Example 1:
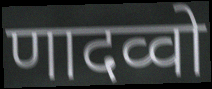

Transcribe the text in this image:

णादव्वो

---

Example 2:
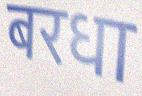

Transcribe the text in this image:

बरधा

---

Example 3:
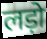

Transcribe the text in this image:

लड़ो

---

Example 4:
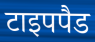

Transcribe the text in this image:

टाइपपैड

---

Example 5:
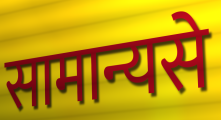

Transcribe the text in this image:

सामान्यसे